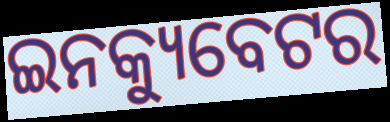
ଇନକ୍ୟୁବେଟର